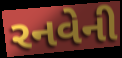
રનવેની